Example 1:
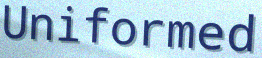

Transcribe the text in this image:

Uniformed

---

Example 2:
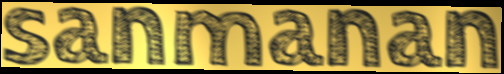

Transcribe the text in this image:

sanmanan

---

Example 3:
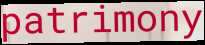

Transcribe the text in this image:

patrimony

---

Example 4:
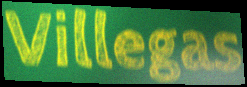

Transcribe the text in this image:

Villegas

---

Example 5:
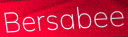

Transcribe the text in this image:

Bersabee